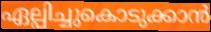
ഏല്പിച്ചുകൊടുക്കാൻ